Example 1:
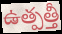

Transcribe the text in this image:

ఉత్పత్తీ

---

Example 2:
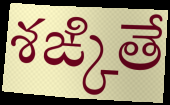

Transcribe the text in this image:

శఙ్కితే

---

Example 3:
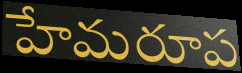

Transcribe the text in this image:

హేమరూప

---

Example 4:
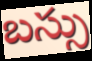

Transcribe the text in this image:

బస్సు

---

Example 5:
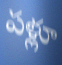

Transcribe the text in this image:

పళ్లూ